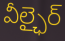
వీల్ఛైర్